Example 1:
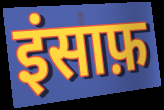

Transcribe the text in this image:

इंसाफ़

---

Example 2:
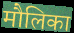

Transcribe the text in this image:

मौलिका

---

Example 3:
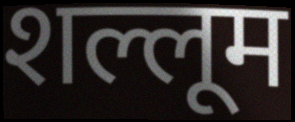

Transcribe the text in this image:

शल्लूम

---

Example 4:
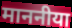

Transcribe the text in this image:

माननीया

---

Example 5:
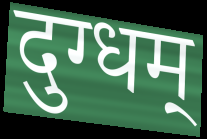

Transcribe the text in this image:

दुग्धम्